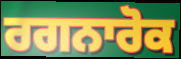
ਰਗਨਾਰੋਕ